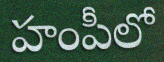
హంపీలో